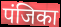
पंजिका